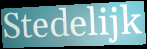
Stedelijk